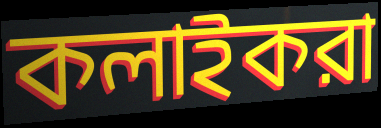
কলাইকরা